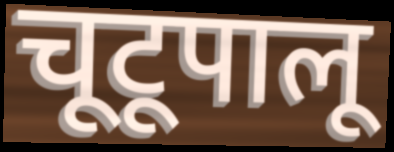
चूटूपालू